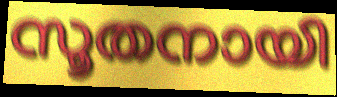
സൂതനായി